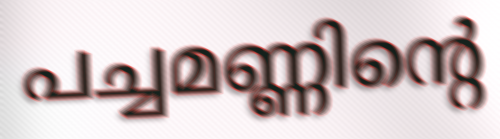
പച്ചമണ്ണിന്റെ